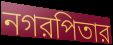
নগরপিতার